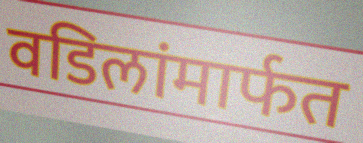
वडिलांमार्फत